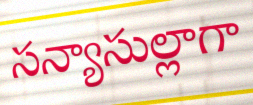
సన్యాసుల్లాగా